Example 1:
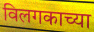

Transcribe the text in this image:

विलगकाच्या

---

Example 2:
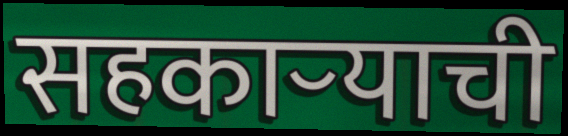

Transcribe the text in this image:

सहकाऱ्याची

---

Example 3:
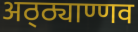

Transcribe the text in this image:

अठ्ठ्याण्णव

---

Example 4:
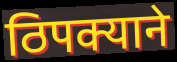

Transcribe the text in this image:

ठिपक्याने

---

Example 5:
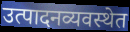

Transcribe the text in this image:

उत्पादनव्यवस्थेत